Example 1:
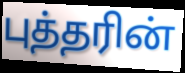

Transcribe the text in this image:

புத்தரின்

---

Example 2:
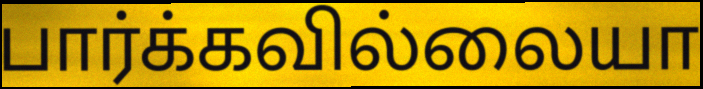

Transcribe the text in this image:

பார்க்கவில்லையா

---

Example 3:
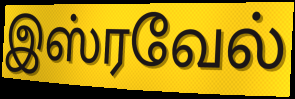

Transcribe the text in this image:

இஸ்ரவேல்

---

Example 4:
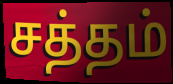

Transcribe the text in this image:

சத்தம்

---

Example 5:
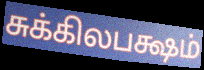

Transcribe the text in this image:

சுக்கிலபக்ஷம்